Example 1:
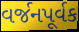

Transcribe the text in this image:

વર્જનપૂર્વક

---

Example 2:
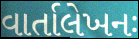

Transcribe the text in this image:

વાર્તાલેખનઃ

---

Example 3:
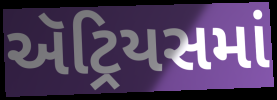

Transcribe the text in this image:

ઍટ્રિયસમાં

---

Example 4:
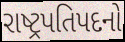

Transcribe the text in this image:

રાષ્ટ્રપતિપદનો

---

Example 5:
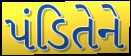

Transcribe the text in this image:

પંડિતેને